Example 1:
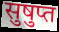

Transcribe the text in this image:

सुषुप्त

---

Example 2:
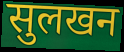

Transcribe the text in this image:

सुलखन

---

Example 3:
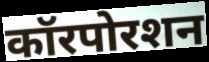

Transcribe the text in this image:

कॉरपोरशन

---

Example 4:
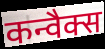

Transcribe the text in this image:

कन्वैक्स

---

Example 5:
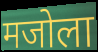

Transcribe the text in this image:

मजोला